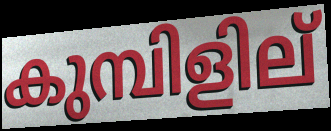
കുമ്പിളില്